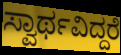
ಸ್ವಾರ್ಥವಿದ್ದರೆ